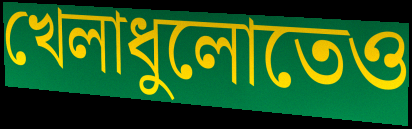
খেলাধুলোতেও